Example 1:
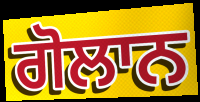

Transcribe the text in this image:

ਗੋਲਾਨ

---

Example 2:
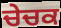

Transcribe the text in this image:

ਚੇਚਕ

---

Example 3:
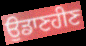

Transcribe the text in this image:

ਉਡਾਣਹੀਣ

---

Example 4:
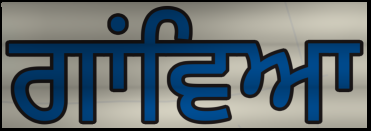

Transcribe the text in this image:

ਗਾਂਵਿਆ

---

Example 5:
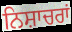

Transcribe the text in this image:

ਨਿਸ਼ਾਚਰਾਂ